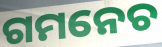
ଗମନେଚ